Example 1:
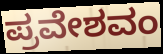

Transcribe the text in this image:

ಪ್ರವೇಶವಂ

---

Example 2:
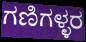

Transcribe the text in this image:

ಗಣಿಗಳ್ಳರ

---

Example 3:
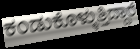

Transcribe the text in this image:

ಕಂಡುಕೊಳ್ಳುತ್ತಿದ್ದಾರೆ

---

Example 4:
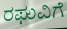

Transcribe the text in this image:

ರಘುವಿಗೆ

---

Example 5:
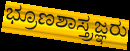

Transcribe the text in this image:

ಭ್ರೂಣಶಾಸ್ತ್ರಜ್ಞರು